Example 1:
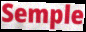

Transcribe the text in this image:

Semple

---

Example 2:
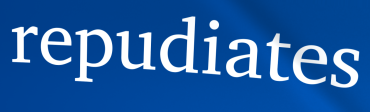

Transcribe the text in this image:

repudiates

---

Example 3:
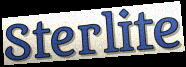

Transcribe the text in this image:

Sterlite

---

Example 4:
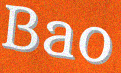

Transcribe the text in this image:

Bao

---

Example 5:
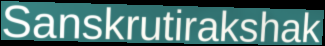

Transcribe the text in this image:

Sanskrutirakshak